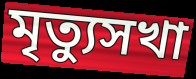
মৃত্যুসখা